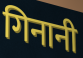
गिनानी